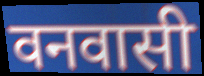
वनवासी